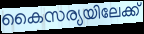
കൈസര്യയിലേക്ക്